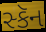
સ્કૅન